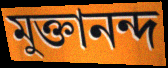
মুক্তানন্দ